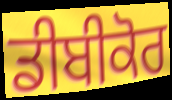
ਡੀਬੀਕੋਰ